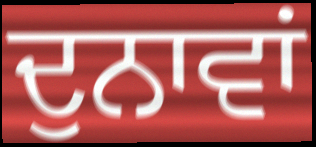
ਦੁਨਾਵਾਂ